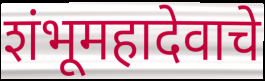
शंभूमहादेवाचे